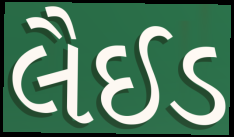
લૈઈડ